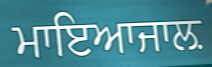
ਮਾਇਆਜਾਲ਼